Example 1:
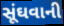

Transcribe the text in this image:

સૂંઘવાની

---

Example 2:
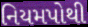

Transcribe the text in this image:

નિયમપોથી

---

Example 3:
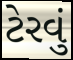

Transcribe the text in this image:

ટેરવું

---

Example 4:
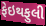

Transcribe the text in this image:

ફેઇથફુલી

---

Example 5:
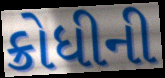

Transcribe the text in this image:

ક્રોધીની